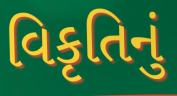
વિકૃતિનું